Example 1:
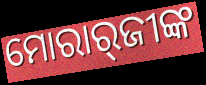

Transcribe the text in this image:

ମୋରାର୍‌ଜୀଙ୍କ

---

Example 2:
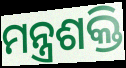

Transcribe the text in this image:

ମନ୍ତ୍ରଶକ୍ତି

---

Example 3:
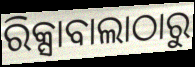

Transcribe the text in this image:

ରିକ୍ସାବାଲାଠାରୁ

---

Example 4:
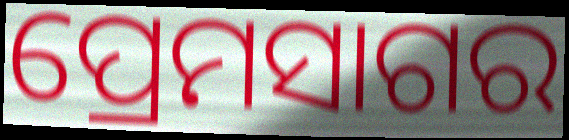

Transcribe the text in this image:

ପ୍ରେମସାଗର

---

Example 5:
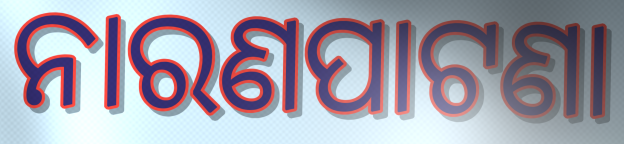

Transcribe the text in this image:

ନାରଣପାଟଣା